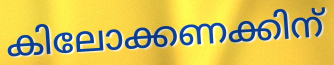
കിലോക്കണക്കിന്